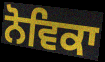
ਨੋਵਿਕਾ